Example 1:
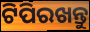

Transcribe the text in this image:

ଟିପିରଖନ୍ତୁ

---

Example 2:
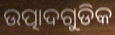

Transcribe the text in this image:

ଉତ୍ପାଦଗୁଡିକ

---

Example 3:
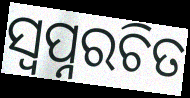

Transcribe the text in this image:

ସ୍ୱପ୍ନରଚିତ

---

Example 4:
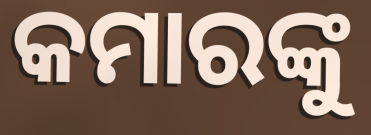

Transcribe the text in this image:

କମାରଙ୍କୁ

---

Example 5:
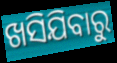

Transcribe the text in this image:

ଖସିଯିବାରୁ